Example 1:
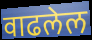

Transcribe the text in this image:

वाढलेल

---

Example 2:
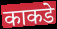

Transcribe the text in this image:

काकडे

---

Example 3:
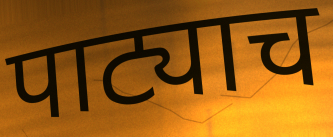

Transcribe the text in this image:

पाट्याच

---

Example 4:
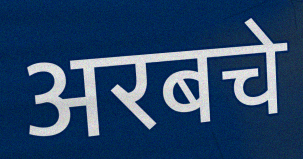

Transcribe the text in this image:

अरबचे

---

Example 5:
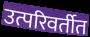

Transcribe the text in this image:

उत्परिवर्तीत